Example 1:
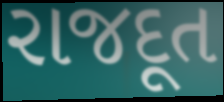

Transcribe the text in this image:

રાજદૂત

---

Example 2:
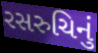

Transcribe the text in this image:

રસરુચિનું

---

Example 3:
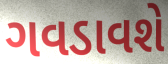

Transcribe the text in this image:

ગવડાવશે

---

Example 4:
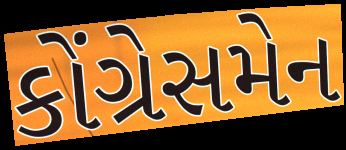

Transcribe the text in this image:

કોંગ્રેસમેન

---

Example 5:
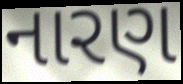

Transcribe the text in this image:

નારણ